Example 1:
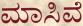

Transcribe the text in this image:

ಮಾಸಿವೆ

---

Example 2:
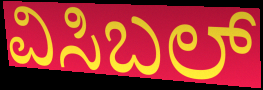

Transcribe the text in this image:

ವಿಸಿಬಲ್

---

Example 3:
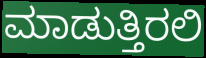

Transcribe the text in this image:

ಮಾಡುತ್ತಿರಲಿ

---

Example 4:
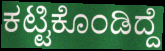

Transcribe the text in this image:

ಕಟ್ಟಿಕೊಂಡಿದ್ದೆ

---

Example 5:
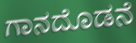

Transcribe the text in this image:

ಗಾನದೊಡನೆ